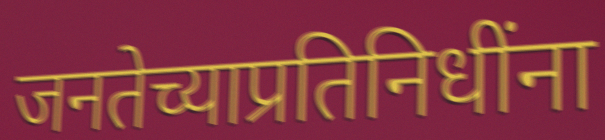
जनतेच्याप्रतिनिधींना